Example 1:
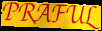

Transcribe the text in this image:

PRAFUL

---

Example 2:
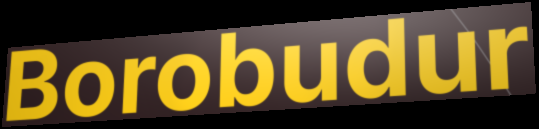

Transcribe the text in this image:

Borobudur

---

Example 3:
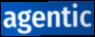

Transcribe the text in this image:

agentic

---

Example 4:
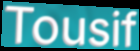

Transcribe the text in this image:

Tousif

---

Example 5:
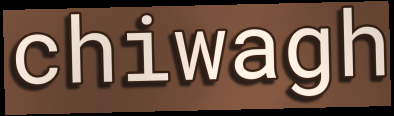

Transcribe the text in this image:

chiwagh